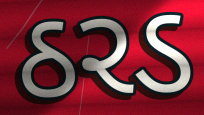
ઠરડ